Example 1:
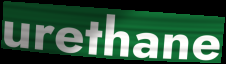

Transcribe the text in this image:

urethane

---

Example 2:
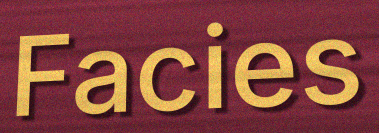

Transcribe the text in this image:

Facies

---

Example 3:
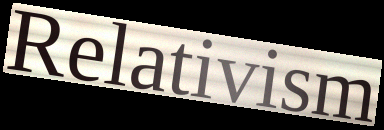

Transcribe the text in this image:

Relativism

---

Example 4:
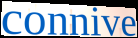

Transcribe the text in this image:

connive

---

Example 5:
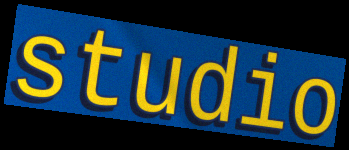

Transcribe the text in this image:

studio